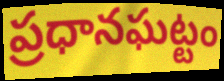
ప్రధానఘట్టం